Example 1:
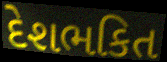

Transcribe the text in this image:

દેશભકિત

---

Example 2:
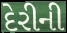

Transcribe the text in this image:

દેરીની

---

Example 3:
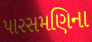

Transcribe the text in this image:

પારસમણિના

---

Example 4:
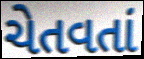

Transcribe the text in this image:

ચેતવતાં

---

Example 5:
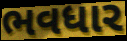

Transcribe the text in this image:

ભવધાર